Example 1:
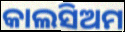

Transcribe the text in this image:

କାଲସିଅମ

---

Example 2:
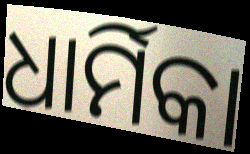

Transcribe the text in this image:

ଧାର୍ମିକା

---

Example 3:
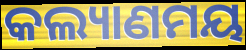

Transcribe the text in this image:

କଲ୍ୟାଣମୟ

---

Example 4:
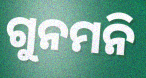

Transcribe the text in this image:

ଗୁନମନି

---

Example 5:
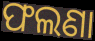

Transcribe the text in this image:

ଫଲଣା